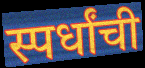
स्पर्धांची